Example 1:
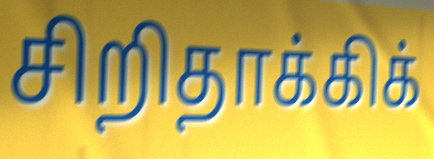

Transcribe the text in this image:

சிறிதாக்கிக்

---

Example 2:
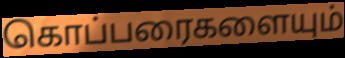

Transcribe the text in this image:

கொப்பரைகளையும்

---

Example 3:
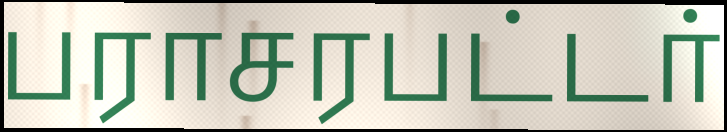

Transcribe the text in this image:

பராசரபட்டர்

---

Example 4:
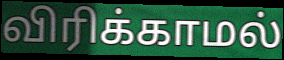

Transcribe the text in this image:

விரிக்காமல்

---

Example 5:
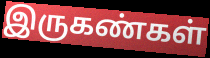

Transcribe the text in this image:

இருகண்கள்